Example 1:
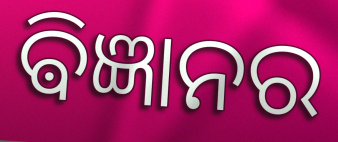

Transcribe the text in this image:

ଵିଜ୍ଞାନର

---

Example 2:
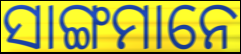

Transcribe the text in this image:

ସାଙ୍ଗମାନେ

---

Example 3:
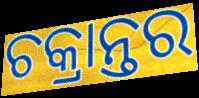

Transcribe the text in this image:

ଚକ୍ରାନ୍ତର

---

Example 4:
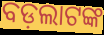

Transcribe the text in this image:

ବଡ଼ଲାଟଙ୍କ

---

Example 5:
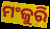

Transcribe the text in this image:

ମଂଜୁରି